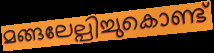
മങ്ങലേല്പിച്ചുകൊണ്ട്